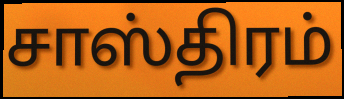
சாஸ்திரம்